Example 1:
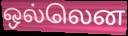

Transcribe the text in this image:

ஒல்லென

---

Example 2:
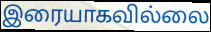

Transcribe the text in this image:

இரையாகவில்லை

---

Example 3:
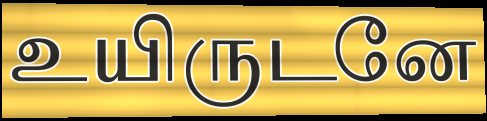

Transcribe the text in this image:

உயிருடனே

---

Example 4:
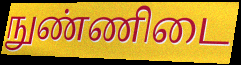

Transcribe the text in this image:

நுண்ணிடை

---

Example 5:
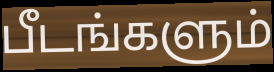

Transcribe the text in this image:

பீடங்களும்